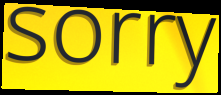
sorry